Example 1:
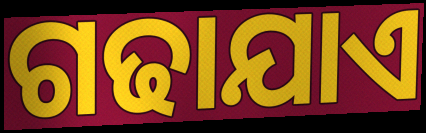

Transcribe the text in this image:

ଗଢାଯାଏ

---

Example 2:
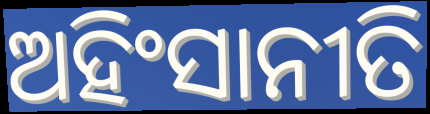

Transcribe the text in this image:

ଅହିଂସାନୀତି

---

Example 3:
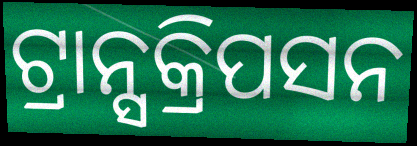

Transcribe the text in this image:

ଟ୍ରାନ୍ସକ୍ରିପସନ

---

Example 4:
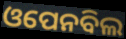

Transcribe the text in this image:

ଓପେନବିଲ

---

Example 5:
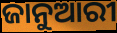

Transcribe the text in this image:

ଜାନୁଆରୀ